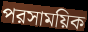
পরসাময়িক